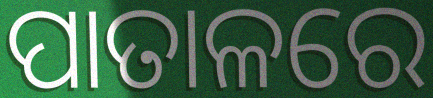
ପାତାଳରେ